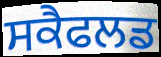
ਸਕੈਫਲਡ